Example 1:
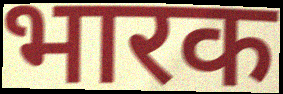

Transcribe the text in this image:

भारक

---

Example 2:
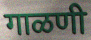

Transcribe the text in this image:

गाळणी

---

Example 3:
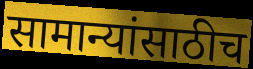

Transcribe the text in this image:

सामान्यांसाठीच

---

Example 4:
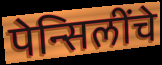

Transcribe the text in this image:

पेन्सिलींचे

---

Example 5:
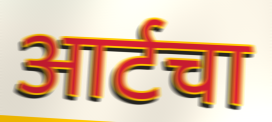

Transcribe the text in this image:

आर्टचा